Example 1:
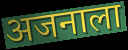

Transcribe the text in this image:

अजनाला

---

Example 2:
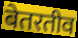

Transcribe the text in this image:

बेतरतीव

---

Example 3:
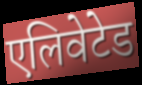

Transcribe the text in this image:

एलिवेटेड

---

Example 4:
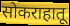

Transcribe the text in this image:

सोकराहातू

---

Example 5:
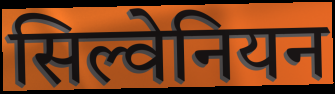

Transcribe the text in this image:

सिल्वेनियन